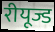
रीयूज्ड